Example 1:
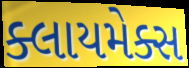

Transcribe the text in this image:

ક્લાયમેક્સ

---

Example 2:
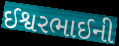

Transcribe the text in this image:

ઈશ્વરભાઈની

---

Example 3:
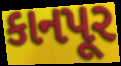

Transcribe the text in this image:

કાનપૂર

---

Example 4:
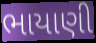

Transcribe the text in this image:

ભાયાણી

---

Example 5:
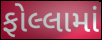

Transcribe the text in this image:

ફોલ્લામાં